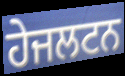
ਹੇਜਲਟਨ